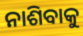
ନାଶିବାକୁ